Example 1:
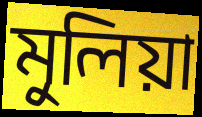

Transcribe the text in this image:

মুলিয়া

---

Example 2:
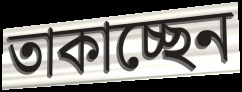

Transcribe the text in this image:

তাকাচ্ছেন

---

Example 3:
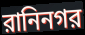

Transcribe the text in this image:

রানিনগর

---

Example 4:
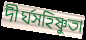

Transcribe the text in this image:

দীর্ঘসহিষ্ণুতা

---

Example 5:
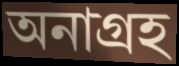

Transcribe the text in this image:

অনাগ্রহ